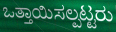
ಒತ್ತಾಯಿಸಲ್ಪಟ್ಟರು